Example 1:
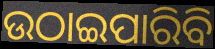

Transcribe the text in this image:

ଉଠାଇପାରିବି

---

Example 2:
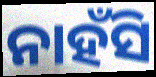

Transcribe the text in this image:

ନାହଁସି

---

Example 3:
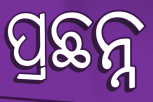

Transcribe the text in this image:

ପ୍ରଛନ୍ନ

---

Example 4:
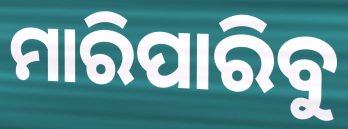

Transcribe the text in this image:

ମାରିପାରିବୁ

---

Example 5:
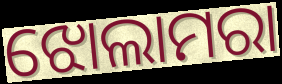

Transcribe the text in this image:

ଝୋଲାମରା